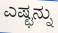
ಎಷ್ಟನ್ನು